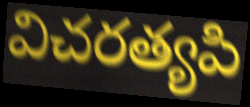
విచరత్యపి